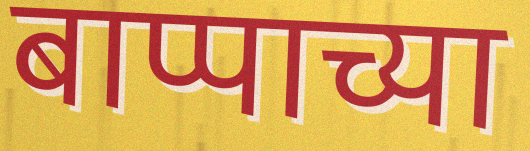
बाप्पाच्या